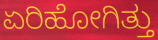
ಏರಿಹೋಗಿತ್ತು